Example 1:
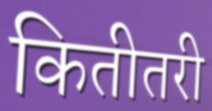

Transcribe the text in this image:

कितीतरी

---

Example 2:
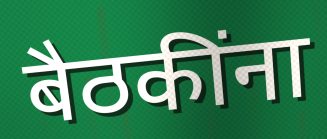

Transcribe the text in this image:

बैठकींना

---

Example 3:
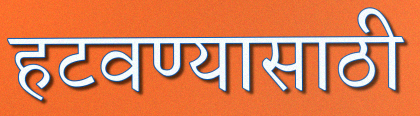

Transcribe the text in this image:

हटवण्यासाठी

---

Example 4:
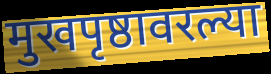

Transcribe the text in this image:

मुखपृष्ठावरल्या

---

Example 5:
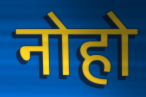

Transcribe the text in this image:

नोहो